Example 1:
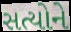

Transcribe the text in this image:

સત્યોને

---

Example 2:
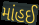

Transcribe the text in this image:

માંહઈ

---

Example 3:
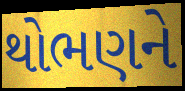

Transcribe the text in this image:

થોભણને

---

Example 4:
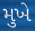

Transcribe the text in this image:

મુખે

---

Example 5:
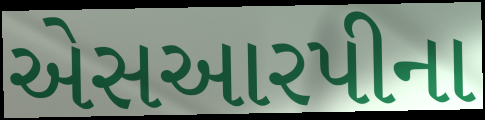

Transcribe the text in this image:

એસઆરપીના